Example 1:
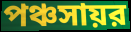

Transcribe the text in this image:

পঞ্চসায়র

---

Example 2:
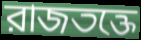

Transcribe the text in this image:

রাজতক্তে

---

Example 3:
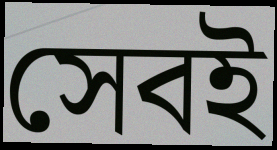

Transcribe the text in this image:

সেবই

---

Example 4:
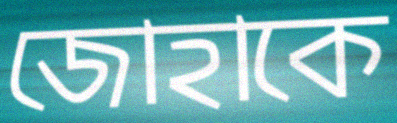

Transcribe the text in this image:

জোহাকে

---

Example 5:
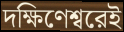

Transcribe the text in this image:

দক্ষিণেশ্বরেই